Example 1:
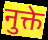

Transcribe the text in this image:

नुक्ते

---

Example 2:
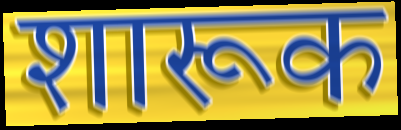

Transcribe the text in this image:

शारूक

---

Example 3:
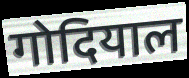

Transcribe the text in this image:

गोदियाल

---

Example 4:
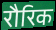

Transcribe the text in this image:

रौरिक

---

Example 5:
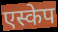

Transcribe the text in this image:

एस्केप